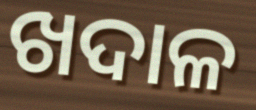
ଖଦାଳ